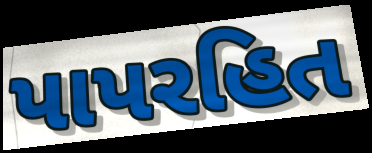
પાપરહિત